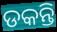
ଡକନ୍ତି